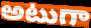
అటుగా